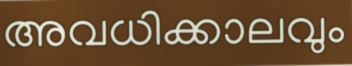
അവധിക്കാലവും